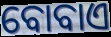
ବୋବାଏ